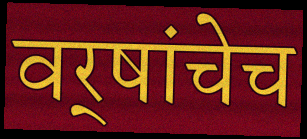
वर्षांचेच